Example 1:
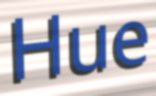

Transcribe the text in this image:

Hue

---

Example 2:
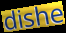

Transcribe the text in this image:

dishe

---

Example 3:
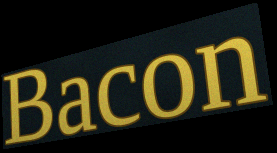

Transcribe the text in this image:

Bacon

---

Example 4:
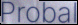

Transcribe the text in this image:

Probal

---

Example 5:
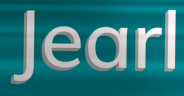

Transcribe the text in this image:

Jearl